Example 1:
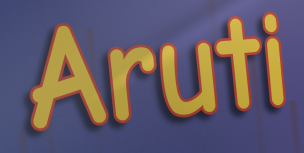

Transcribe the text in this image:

Aruti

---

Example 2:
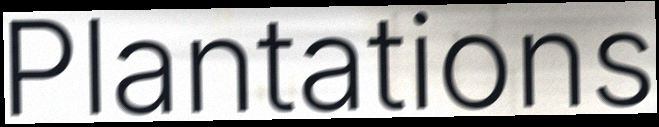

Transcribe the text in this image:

Plantations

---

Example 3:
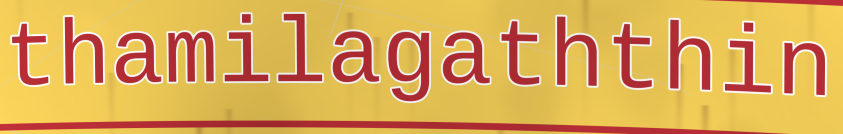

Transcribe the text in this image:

thamilagaththin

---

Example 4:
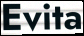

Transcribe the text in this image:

Evita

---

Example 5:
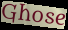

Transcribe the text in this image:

Ghose